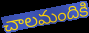
చాలమందికి